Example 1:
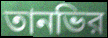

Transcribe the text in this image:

তানভির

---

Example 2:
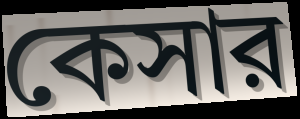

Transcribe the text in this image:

কেসার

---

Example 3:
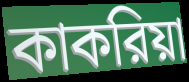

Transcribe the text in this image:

কাকরিয়া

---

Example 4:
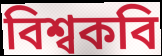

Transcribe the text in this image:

বিশ্বকবি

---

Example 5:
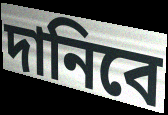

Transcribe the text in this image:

দানিবে